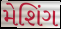
મેશિંગ